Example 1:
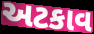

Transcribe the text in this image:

અટકાવ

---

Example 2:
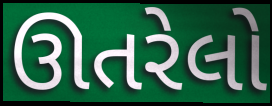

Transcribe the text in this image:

ઊતરેલો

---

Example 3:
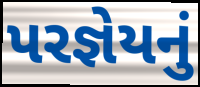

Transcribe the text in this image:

પરજ્ઞેયનું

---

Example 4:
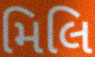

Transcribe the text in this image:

મિલિ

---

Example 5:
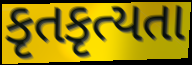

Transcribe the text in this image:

કૃતકૃત્યતા